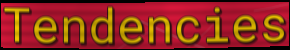
Tendencies